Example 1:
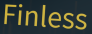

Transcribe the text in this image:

Finless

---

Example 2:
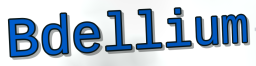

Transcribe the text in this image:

Bdellium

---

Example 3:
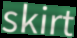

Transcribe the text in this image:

skirt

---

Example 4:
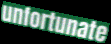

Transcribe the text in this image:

unfortunate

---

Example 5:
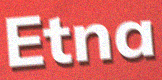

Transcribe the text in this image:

Etna